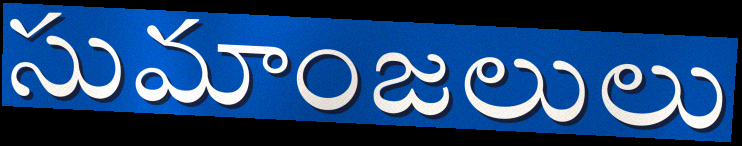
సుమాంజలులు